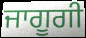
ਜਾਗੂਗੀ